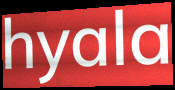
hyala